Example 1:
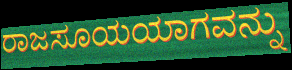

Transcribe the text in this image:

ರಾಜಸೂಯಯಾಗವನ್ನು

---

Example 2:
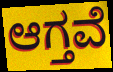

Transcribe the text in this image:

ಆಗ್ತವೆ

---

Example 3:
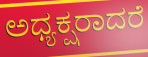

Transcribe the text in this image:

ಅಧ್ಯಕ್ಷರಾದರೆ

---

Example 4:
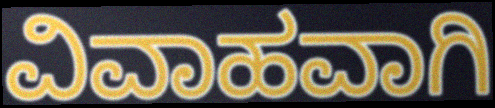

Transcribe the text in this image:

ವಿವಾಹವಾಗಿ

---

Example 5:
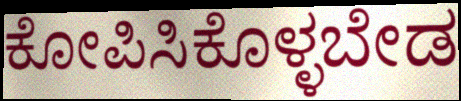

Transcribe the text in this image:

ಕೋಪಿಸಿಕೊಳ್ಳಬೇಡ